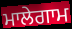
ਮਾਲੇਗਾਮ